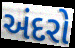
અંદરો